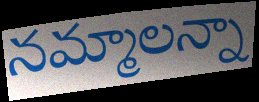
నమ్మాలన్నా